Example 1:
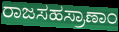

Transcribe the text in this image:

ರಾಜಸಹಸ್ರಾಣಾಂ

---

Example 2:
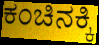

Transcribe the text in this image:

ಕಂಚಿನಕ್ಕಿ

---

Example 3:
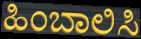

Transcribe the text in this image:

ಹಿಂಬಾಲಿಸಿ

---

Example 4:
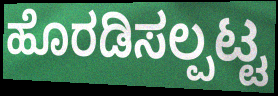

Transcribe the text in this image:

ಹೊರಡಿಸಲ್ಪಟ್ಟ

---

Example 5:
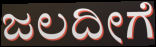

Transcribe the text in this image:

ಜಲದೀಗೆ